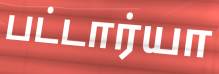
பட்டார்யா